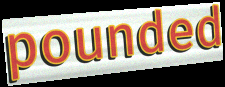
pounded